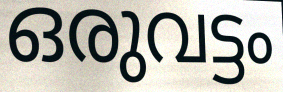
ഒരുവട്ടം